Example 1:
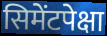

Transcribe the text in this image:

सिमेंटपेक्षा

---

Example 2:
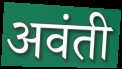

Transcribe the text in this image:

अवंती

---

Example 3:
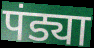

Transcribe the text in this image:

पंड्या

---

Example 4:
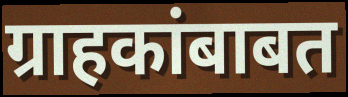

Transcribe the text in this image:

ग्राहकांबाबत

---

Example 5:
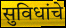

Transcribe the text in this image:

सुविधांचे